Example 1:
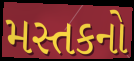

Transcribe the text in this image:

મસ્તકનો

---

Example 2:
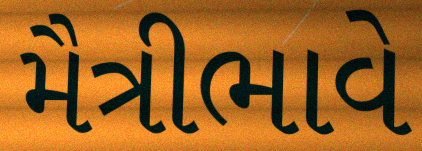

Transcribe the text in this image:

મૈત્રીભાવે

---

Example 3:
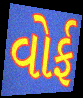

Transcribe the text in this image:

વોર્ફ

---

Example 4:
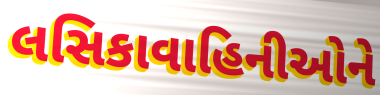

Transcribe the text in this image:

લસિકાવાહિનીઓને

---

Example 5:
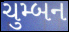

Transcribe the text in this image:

ચુમ્બન